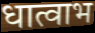
धात्वाभ